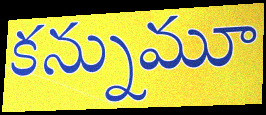
కన్నుమూ